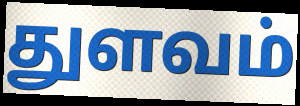
துளவம்